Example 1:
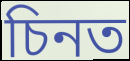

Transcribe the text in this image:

চিনত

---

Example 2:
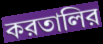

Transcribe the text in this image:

করতালির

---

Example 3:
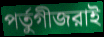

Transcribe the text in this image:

পর্তুগীজরাই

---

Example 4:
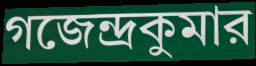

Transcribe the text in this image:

গজেন্দ্রকুমার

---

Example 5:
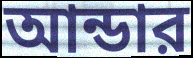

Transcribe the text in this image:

আন্ডার